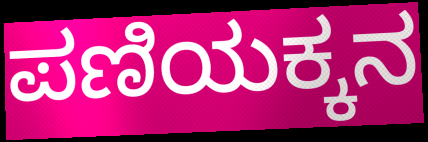
ಪಣಿಯಕ್ಕನ